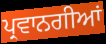
ਪ੍ਰਵਾਨਗੀਆਂ